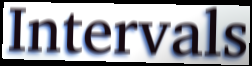
Intervals